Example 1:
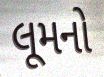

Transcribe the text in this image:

લૂમનો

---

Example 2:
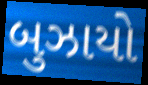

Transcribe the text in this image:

બુઝાયો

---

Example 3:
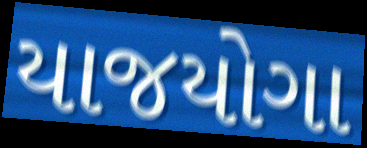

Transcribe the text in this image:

યાજયોગા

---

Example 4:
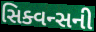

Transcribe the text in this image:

સિક્વન્સની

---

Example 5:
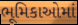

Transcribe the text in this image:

ભૂમિકાઓમાં